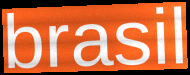
brasil